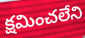
క్షమించలేని